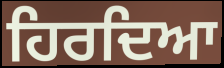
ਹਿਰਦਿਆ